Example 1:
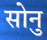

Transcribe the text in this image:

सोनु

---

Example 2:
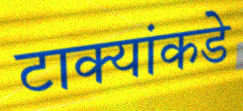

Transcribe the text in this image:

टाक्यांकडे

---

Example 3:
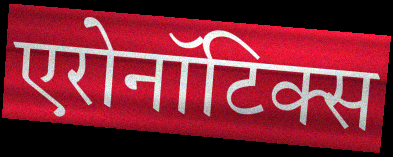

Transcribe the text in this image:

एरोनॉटिक्स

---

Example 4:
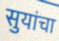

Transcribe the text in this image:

सुयांचा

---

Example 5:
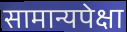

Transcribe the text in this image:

सामान्यपेक्षा